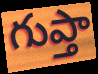
గుప్తా